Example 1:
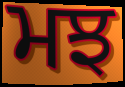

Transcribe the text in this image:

ਮਝ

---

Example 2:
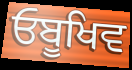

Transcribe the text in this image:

ਓਬੂਖਿਵ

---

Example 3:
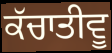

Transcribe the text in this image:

ਕੱਚਾਤੀਵੂ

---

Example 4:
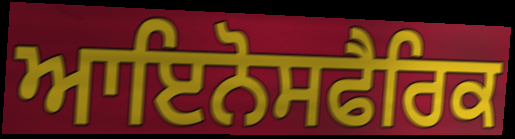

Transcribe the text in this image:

ਆਇਨੋਸਫੈਰਿਕ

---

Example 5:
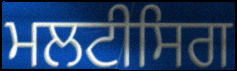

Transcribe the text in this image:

ਮਲਟੀਸਿਗ